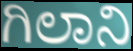
ಗಿಲಾನಿ